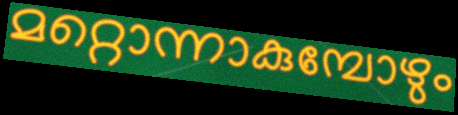
മറ്റൊന്നാകുമ്പോഴും